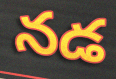
నడ